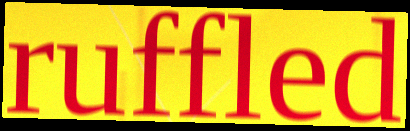
ruffled